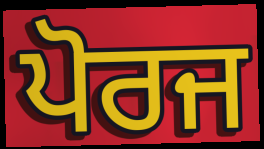
ਪੋਰਜ